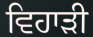
ਵਿਹਾੜੀ